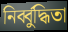
নির্ব্বুদ্ধিতা